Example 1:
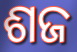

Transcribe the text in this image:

ଶଜ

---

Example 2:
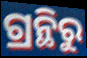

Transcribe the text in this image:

ଗ୍ରନ୍ଥିରୁ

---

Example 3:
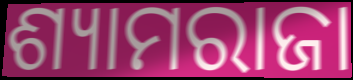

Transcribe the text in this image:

ଶ୍ୟାମରାଜା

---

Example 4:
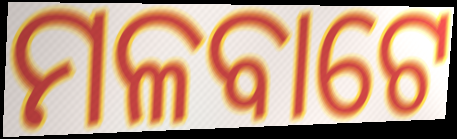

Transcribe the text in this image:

ମଳବାଟେ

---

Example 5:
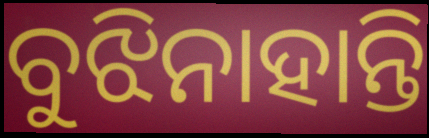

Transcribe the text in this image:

ବୁଝିନାହାନ୍ତି